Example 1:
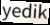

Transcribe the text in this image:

yedik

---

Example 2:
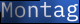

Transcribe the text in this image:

Montag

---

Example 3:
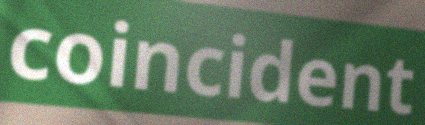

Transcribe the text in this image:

coincident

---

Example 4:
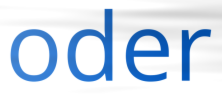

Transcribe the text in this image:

oder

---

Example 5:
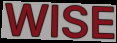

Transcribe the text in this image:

WISE